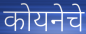
कोयनेचे